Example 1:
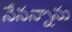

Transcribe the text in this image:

నేనన్నాను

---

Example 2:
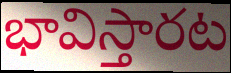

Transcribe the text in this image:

భావిస్తారట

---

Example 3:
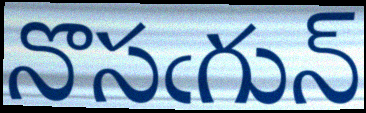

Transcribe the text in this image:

నొసఁగున్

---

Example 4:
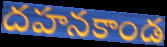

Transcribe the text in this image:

దహనకాండ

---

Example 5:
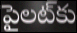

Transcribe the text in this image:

పైలట్‌కు